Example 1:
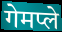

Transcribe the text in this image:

गेमप्ले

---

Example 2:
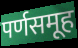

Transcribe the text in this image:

पर्णसमूह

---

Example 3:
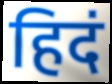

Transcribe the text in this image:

हिदं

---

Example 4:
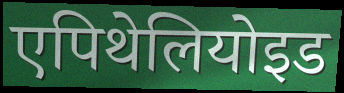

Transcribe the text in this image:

एपिथेलियोइड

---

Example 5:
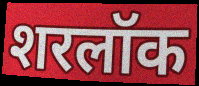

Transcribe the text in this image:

शरलॉक